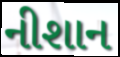
નીશાન